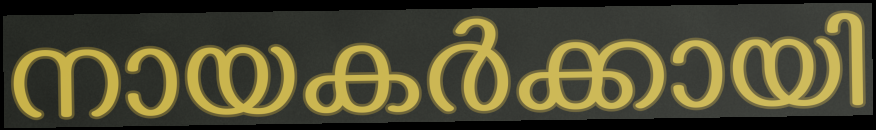
നായകർക്കായി